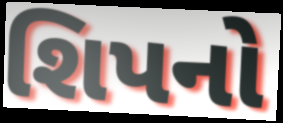
શિપનો